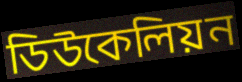
ডিউকেলিয়ন